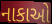
નાકાઓ